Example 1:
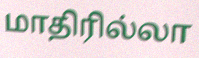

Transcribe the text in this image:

மாதிரில்லா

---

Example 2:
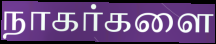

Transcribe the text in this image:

நாகர்களை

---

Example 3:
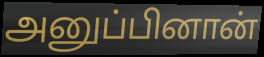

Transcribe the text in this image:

அனுப்பினான்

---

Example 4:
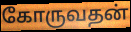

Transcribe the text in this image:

கோருவதன்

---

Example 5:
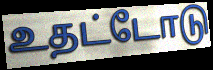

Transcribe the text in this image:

உதட்டோடு